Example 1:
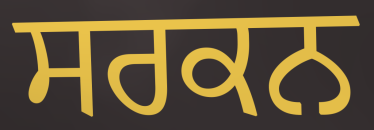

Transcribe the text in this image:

ਸਰਕਨ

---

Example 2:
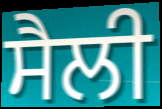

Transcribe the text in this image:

ਸੈਲੀ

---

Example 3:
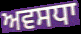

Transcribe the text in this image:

ਅਵਸਧਾ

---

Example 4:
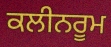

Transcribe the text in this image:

ਕਲੀਨਰੂਮ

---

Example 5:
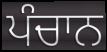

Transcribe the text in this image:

ਪੰਚਾਨ